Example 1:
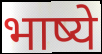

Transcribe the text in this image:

भाष्ये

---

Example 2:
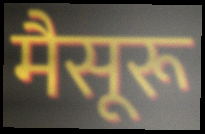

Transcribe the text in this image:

मैसूरू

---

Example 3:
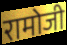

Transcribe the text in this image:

रामोजी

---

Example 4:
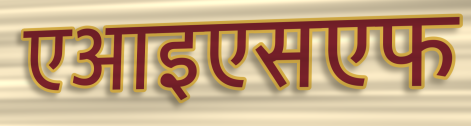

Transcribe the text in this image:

एआइएसएफ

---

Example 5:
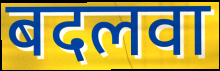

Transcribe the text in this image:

बदलवा